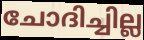
ചോദിച്ചില്ല